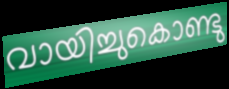
വായിച്ചുകൊണ്ടു